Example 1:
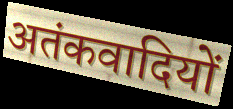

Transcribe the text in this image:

अतंकवादियों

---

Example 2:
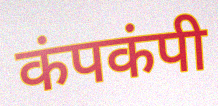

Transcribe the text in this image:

कंपकंपी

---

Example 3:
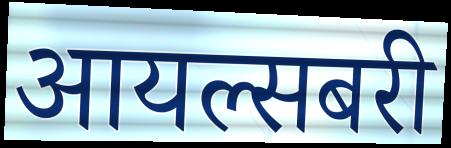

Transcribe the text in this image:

आयल्सबरी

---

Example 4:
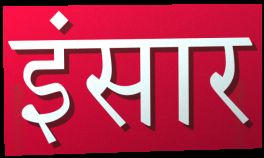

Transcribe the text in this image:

इंसार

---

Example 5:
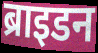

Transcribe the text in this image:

ब्राइडन